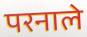
परनाले